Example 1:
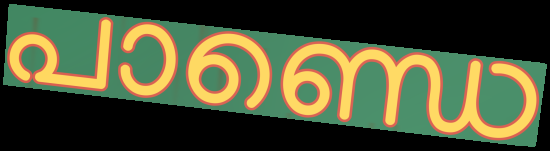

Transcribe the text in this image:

പാണ്ഡെ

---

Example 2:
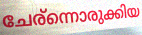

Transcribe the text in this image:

ചേര്ന്നൊരുക്കിയ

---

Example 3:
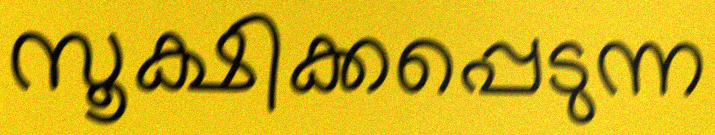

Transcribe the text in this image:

സൂക്ഷിക്കപ്പെടുന്ന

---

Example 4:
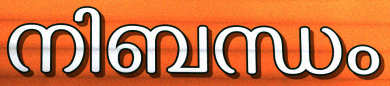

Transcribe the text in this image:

നിബന്ധം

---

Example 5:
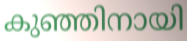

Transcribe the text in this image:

കുഞ്ഞിനായി